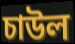
চাউল